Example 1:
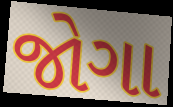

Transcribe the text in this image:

જોગા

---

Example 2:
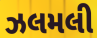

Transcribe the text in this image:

ઝલમલી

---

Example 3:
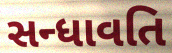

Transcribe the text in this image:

સન્ધાવતિ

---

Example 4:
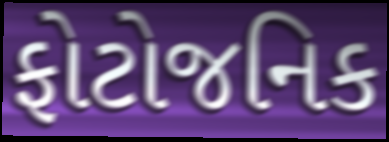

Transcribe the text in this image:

ફોટોજનિક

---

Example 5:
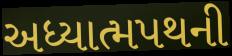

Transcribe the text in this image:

અધ્યાત્મપથની